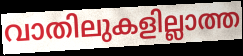
വാതിലുകളില്ലാത്ത